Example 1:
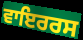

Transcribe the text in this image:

ਵਾਇਰਰਸ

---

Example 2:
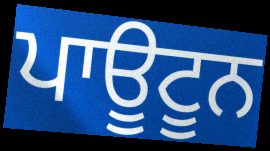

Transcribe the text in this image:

ਪਾਊਟੂਨ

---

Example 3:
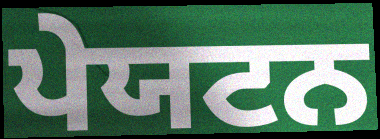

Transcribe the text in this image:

ਪੇਯਟਨ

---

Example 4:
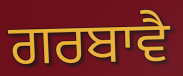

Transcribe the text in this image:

ਗਰਬਾਵੈ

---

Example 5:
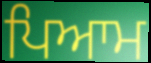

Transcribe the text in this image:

ਪਿਆਮ